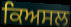
ਕਿਅਸਲ